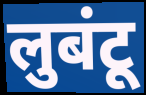
लुबंटू